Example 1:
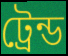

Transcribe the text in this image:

ট্রেন্ড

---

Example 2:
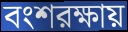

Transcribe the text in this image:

বংশরক্ষায়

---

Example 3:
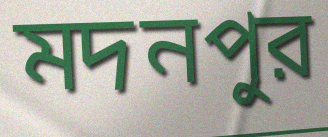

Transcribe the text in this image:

মদনপুর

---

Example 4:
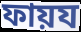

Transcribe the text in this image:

ফায়য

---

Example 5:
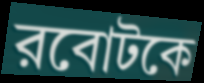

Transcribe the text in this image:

রবোটকে